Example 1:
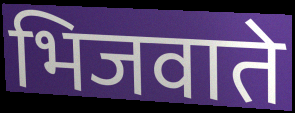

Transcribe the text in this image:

भिजवाते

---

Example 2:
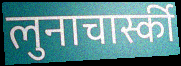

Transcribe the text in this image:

लुनाचार्स्की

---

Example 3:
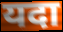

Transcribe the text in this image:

यदा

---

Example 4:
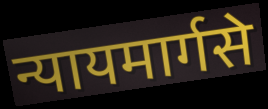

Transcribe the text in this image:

न्यायमार्गसे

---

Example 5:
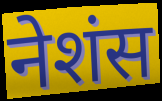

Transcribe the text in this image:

नेशंस